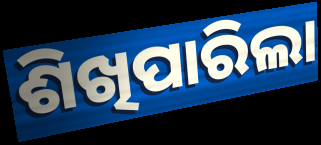
ଶିଖିପାରିଲା